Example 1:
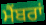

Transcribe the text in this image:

ਮੈਂਬਰਾਂ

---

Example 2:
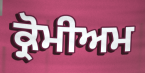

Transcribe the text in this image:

ਕ੍ਰੋਮੀਅਮ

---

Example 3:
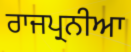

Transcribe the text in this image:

ਰਾਜਪ੍ਰਨੀਆ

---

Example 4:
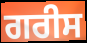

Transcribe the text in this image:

ਗਰੀਸ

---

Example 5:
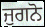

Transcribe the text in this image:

ਜੁਗਨੋ